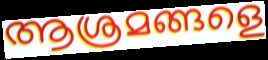
ആശ്രമങ്ങളെ